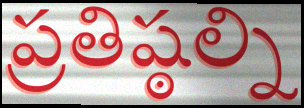
ప్రతిష్ఠల్ని